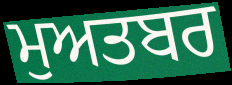
ਮੁਅਤਬਰ